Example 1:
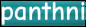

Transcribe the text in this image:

panthni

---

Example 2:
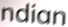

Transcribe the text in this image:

ndian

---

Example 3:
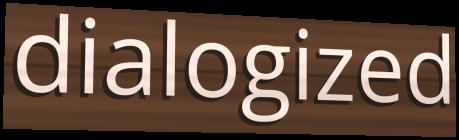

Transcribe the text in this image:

dialogized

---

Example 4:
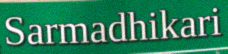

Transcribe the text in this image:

Sarmadhikari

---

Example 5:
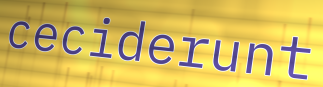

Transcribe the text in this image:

ceciderunt